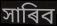
সাৰিব